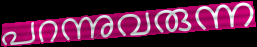
പറന്നുവരുന്ന